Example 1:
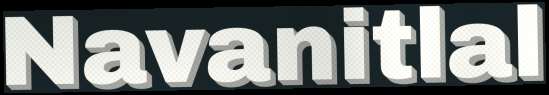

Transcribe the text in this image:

Navanitlal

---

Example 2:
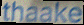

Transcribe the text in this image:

thaake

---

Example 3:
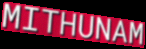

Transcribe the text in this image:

MITHUNAM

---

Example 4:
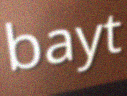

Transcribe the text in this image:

bayt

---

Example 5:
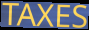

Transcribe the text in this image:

TAXES